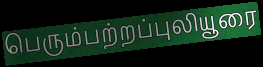
பெரும்பற்றப்புலியூரை